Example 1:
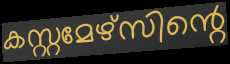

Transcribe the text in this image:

കസ്റ്റമേഴ്സിന്റെ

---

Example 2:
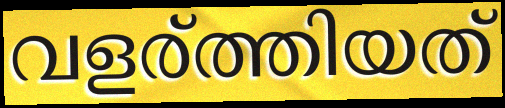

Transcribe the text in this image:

വളര്ത്തിയത്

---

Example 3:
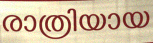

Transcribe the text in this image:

രാത്രിയായ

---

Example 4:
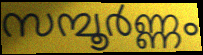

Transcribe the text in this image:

സമ്പൂർണ്ണം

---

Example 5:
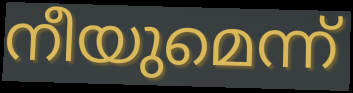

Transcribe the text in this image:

നീയുമെന്ന്